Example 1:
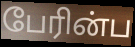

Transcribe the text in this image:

பேரின்ப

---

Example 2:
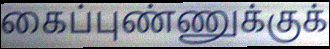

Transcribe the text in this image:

கைப்புண்ணுக்குக்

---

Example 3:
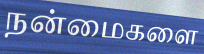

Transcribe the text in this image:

நன்மைகளை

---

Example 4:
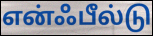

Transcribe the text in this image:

என்ஃபீல்டு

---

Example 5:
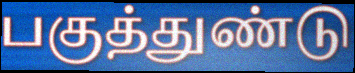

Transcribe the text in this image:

பகுத்துண்டு